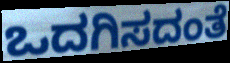
ಒದಗಿಸದಂತೆ